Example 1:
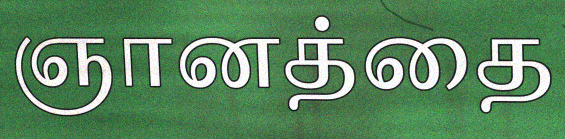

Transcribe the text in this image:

ஞானத்தை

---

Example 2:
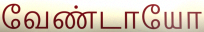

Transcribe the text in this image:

வேண்டாயோ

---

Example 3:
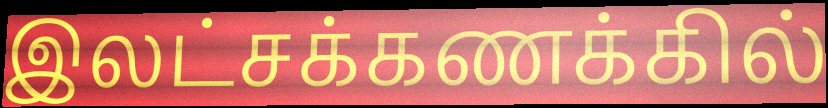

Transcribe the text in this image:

இலட்சக்கணக்கில்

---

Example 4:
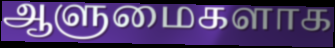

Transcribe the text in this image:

ஆளுமைகளாக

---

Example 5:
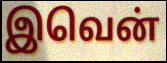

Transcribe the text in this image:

இவென்